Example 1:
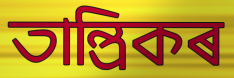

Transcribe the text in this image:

তান্ত্ৰিকৰ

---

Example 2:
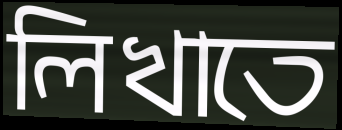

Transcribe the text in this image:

লিখাতে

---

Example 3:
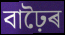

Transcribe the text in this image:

বাঢ়ৈৰ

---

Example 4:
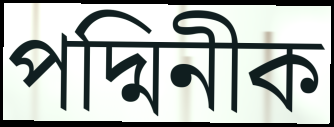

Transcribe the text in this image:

পদ্মিনীক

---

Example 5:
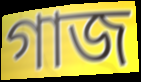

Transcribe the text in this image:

গাজ